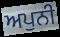
ਅਪੁਨੀ